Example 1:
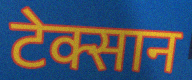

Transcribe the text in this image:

टेक्सान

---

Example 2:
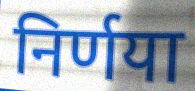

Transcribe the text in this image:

निर्णया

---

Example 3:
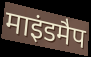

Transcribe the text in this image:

माइंडमैप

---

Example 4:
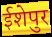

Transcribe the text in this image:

ईशेपुर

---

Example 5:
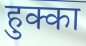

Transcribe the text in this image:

हुक्का